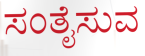
ಸಂತೈಸುವ